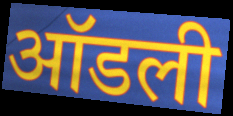
ऑडली